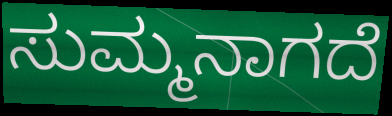
ಸುಮ್ಮನಾಗದೆ